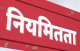
नियमितता